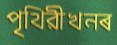
পৃথিৱীখনৰ